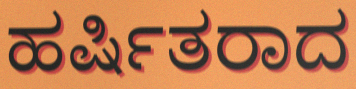
ಹರ್ಷಿತರಾದ